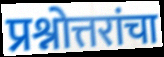
प्रश्नोत्तरांचा